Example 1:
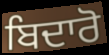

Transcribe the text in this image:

ਬਿਦਾਰੋ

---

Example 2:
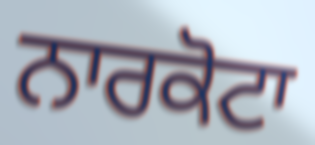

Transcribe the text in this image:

ਨਾਰਕੋਟਾ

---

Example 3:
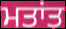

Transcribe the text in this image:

ਮਤਾਂਤ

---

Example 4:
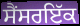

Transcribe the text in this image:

ਸੈਂਸਰਇੱਕ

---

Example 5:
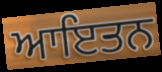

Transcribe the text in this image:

ਆਇਤਨ